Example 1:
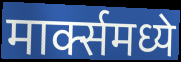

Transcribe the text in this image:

मार्क्समध्ये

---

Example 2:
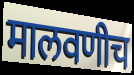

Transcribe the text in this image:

मालवणीच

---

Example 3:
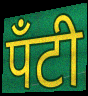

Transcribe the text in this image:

पॅंटी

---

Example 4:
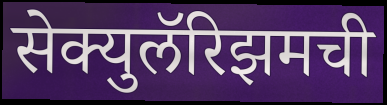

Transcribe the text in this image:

सेक्युलॅरिझमची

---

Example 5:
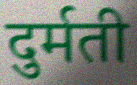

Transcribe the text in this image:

दुर्मती